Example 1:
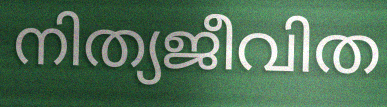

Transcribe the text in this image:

നിത്യജീവിത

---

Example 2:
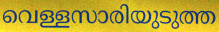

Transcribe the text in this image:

വെള്ളസാരിയുടുത്ത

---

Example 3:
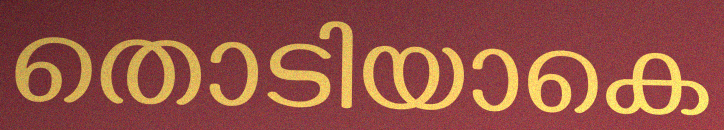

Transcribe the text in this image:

തൊടിയാകെ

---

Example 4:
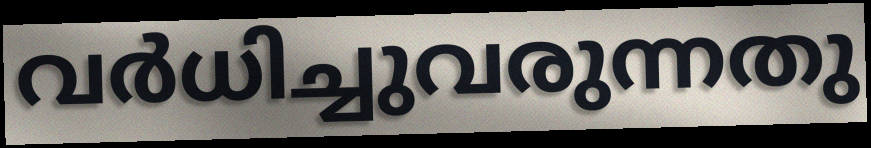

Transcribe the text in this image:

വർധിച്ചുവരുന്നതു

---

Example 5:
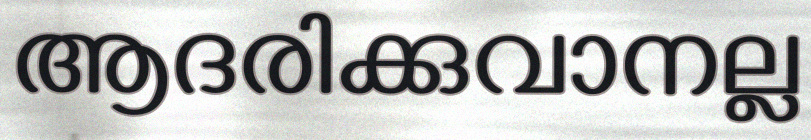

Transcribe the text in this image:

ആദരിക്കുവാനല്ല